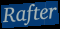
Rafter